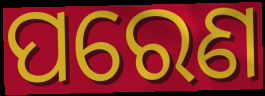
ପରେଣ